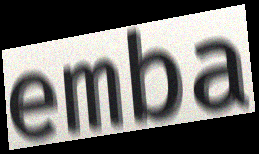
emba